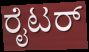
ರೈಟರ್